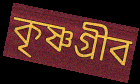
কৃষ্ণগ্রীব